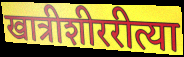
खात्रीशीररीत्या